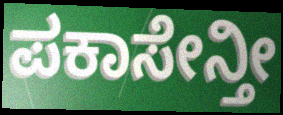
ಪಕಾಸೇನ್ತೀ